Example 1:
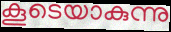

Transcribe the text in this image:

കൂടെയാകുന്നു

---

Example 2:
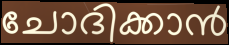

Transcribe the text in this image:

ചോദിക്കാൻ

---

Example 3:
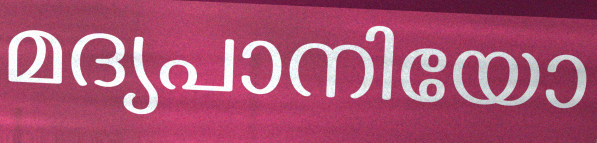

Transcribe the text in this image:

മദ്യപാനിയോ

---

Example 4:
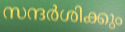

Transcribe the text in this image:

സന്ദർശിക്കും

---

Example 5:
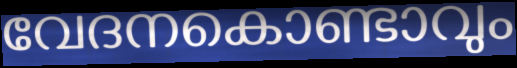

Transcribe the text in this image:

വേദനകൊണ്ടാവും